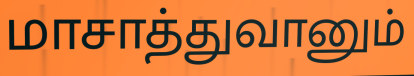
மாசாத்துவானும்